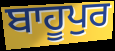
ਬਾਹੂਪੁਰ